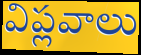
విప్లవాలు